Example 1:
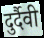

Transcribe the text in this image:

दुर्दैवी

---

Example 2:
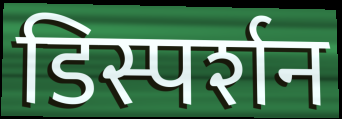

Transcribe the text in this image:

डिस्पर्शन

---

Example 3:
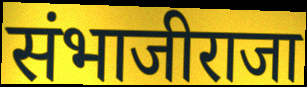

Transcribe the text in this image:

संभाजीराजा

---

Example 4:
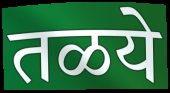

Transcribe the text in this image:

तळये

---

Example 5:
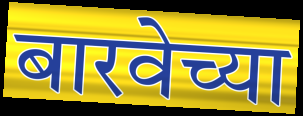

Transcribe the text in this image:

बारवेच्या